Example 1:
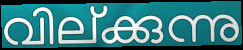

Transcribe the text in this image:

വില്ക്കുന്നു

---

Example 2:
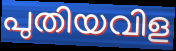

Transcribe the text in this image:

പുതിയവിള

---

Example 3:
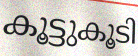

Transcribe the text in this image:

കൂട്ടുകൂടി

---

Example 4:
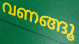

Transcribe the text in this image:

വണങ്ങൂ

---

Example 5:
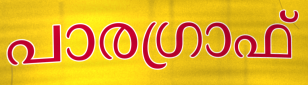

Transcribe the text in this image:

പാരഗ്രാഫ്